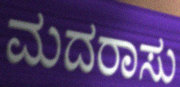
ಮದರಾಸು